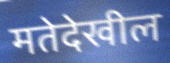
मतेदेखील